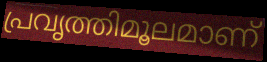
പ്രവൃത്തിമൂലമാണ്